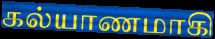
கல்யாணமாகி